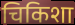
चिकिशा